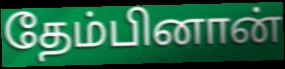
தேம்பினான்